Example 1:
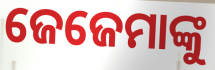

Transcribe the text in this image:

ଜେଜେମାଙ୍କୁ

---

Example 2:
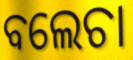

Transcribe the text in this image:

ବଲେଚା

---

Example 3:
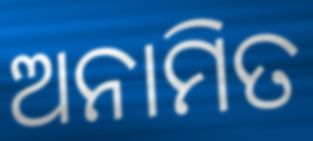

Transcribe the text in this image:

ଅନାମିତ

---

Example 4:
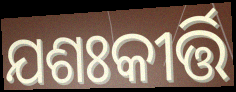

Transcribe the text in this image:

ଯଶଃକୀର୍ତ୍ତି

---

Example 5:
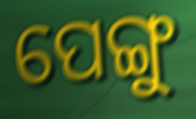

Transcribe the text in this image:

ପେଙ୍ଗୁ